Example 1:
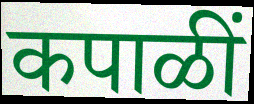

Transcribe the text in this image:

कपाळीं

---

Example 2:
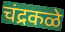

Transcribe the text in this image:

चंद्रकळे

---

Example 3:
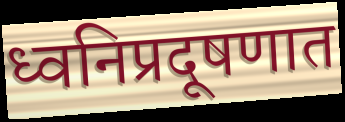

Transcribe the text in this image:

ध्वनिप्रदूषणात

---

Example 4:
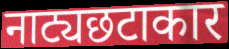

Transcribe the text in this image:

नाट्यछटाकार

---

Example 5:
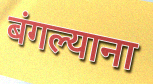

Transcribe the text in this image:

बंगल्याना